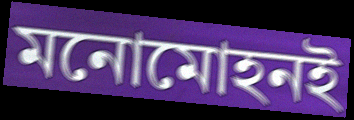
মনোমোহনই